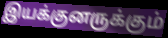
இயக்குனருக்கும்